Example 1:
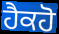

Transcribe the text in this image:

ਹੈਕਹੋ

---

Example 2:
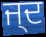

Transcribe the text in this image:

ਜ੍ਦ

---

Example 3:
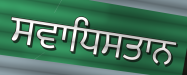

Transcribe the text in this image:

ਸਵਾਧਿਸਤਾਨ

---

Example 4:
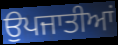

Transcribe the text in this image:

ਉਪਜਾਤੀਆਂ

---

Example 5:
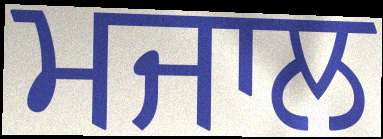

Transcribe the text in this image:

ਮਜਾਲ